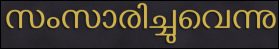
സംസാരിച്ചുവെന്നു